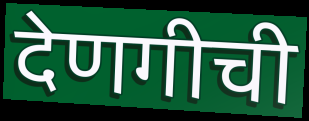
देणगीची